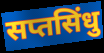
सप्तसिंधु